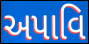
અપાવિ